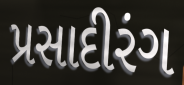
પ્રસાદીરંગ